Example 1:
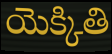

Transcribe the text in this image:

యెక్కితి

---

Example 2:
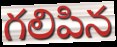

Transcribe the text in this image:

గలిపిన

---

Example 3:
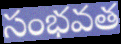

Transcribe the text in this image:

సంభవత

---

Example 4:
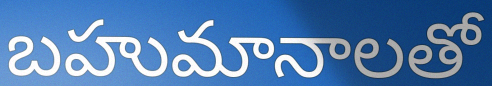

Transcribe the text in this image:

బహుమానాలతో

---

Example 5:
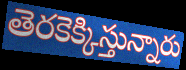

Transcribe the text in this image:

తెరకెక్కిస్తున్నారు